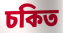
চকিত